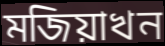
মজিয়াখন